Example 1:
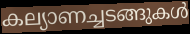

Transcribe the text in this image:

കല്യാണച്ചടങ്ങുകൾ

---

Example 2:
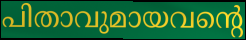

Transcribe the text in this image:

പിതാവുമായവന്റെ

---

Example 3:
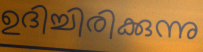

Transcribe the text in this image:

ഉദിച്ചിരിക്കുന്നു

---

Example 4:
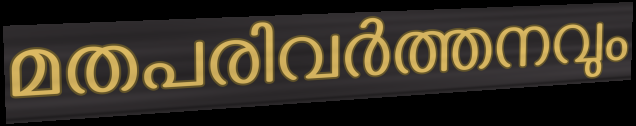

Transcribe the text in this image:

മതപരിവർത്തനവും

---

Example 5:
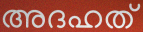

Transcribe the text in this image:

അദഹത്